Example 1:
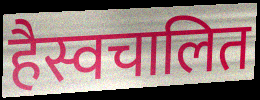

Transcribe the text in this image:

हैस्वचालित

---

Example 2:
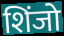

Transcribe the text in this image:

शिंजो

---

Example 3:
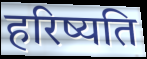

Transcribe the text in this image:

हरिष्यति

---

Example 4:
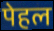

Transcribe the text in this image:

पेहल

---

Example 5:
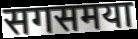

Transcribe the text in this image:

सगसमया